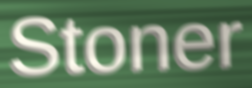
Stoner